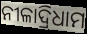
ନୀଳାଦ୍ରିଧାମ